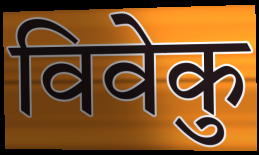
विवेकु